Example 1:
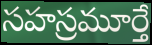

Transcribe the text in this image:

సహస్రమూర్తే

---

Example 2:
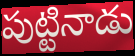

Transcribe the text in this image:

పుట్టినాడు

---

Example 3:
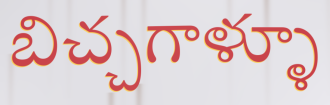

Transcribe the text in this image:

బిచ్చగాళ్ళూ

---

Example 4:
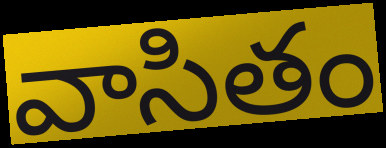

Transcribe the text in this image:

వాసితం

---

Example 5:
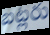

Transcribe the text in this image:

బట్లరు